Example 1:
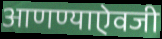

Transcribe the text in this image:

आणण्याऐवजी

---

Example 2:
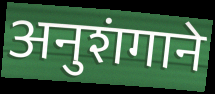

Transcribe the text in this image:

अनुशंगाने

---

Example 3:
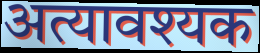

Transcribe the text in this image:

अत्यावश्‍यक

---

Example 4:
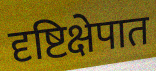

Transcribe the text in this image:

दृष्टिक्षेपात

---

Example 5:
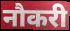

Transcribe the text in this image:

नौकरी